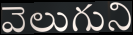
వెలుగుని